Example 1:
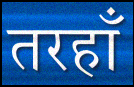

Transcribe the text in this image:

तरहाँ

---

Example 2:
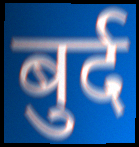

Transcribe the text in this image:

बुर्द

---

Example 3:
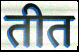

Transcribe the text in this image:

तीत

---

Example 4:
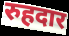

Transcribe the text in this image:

रुहदार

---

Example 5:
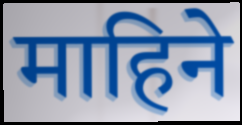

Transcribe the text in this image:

माहिने